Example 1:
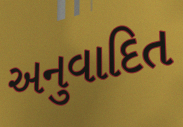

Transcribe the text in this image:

અનુવાદિત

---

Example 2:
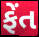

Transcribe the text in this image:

ફેંત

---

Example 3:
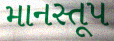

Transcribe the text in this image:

માનસ્તૂપ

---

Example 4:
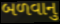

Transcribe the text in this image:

બળવાનુ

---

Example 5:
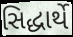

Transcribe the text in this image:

સિદ્ધાર્થે